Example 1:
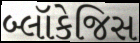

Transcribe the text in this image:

બ્લૉકેજિસ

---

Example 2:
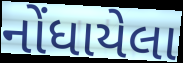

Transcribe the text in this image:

નોંધાયેલા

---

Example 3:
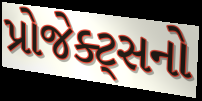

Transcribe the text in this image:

પ્રોજેક્ટ્સનો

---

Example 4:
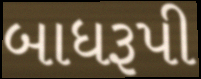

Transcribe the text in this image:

બાધરૂપી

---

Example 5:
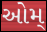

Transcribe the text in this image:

ઓમ્